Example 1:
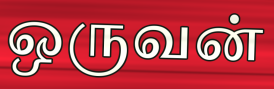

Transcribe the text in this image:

ஒருவன்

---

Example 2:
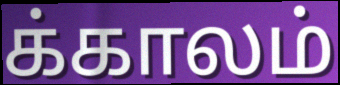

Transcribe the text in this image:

க்காலம்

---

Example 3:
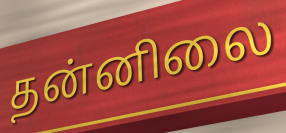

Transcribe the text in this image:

தன்னிலை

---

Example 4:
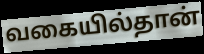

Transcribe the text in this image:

வகையில்தான்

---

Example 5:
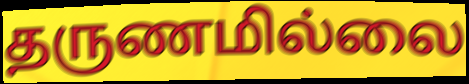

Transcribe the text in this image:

தருணமில்லை